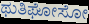
ಥುತಿಘೋಸೋ